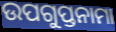
ଉପଗୁପ୍ତନାମା